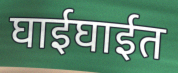
घाईघाईत